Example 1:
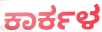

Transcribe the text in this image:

ಕಾರ್ಕಳ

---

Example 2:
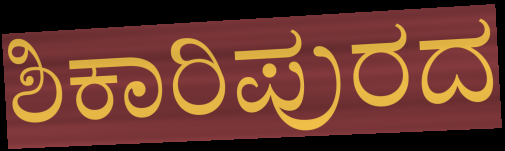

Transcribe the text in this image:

ಶಿಕಾರಿಪುರದ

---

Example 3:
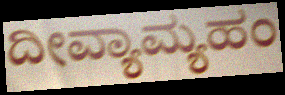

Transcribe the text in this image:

ದೀವ್ಯಾಮ್ಯಹಂ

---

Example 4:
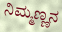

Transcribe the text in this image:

ನಿಮ್ಮಣ್ಣನ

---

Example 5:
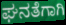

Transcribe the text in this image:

ಘನತೆಗಾಗಿ